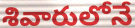
శివారులోనే